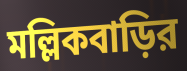
মল্লিকবাড়ির